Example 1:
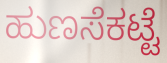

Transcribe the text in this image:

ಹುಣಸೆಕಟ್ಟೆ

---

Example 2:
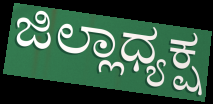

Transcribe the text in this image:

ಜಿಲ್ಲಾಧ್ಯಕ್ಷ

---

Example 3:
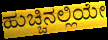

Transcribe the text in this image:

ಹುಚ್ಚಿನಲ್ಲಿಯೇ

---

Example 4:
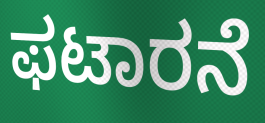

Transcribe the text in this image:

ಫಟಾರನೆ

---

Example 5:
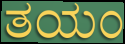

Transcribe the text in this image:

ತಯಂ